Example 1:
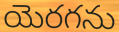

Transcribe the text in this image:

యెరగను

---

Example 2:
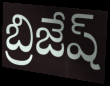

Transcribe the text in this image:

బ్రిజేష్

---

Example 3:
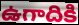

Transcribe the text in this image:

ఉగాదికి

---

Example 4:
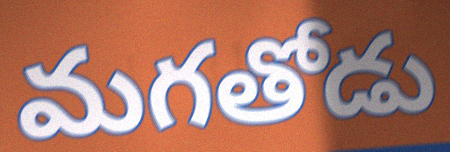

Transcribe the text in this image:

మగతోడు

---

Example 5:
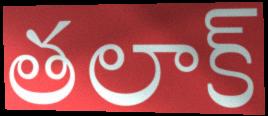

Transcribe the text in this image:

తలాక్